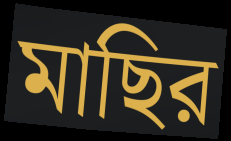
মাছির